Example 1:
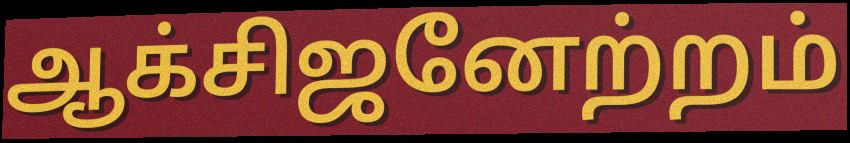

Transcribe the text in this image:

ஆக்சிஜனேற்றம்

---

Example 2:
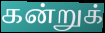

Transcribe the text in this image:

கன்றுக்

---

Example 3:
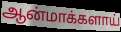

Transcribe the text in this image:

ஆன்மாக்களாய்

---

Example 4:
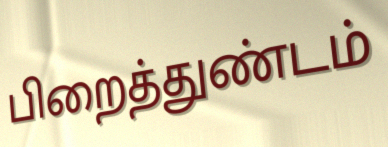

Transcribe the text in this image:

பிறைத்துண்டம்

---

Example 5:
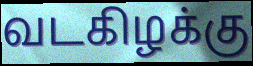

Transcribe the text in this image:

வடகிழக்கு